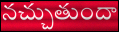
నచ్చుతుందా